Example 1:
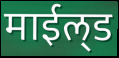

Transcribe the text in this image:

माईल्ड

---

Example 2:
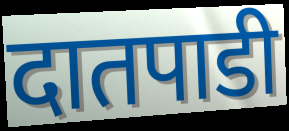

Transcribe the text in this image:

दातपाडी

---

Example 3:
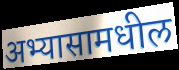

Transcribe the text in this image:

अभ्यासामधील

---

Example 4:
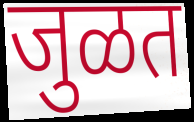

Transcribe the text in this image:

जुळत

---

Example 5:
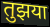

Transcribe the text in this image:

तुझया